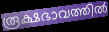
രൂക്ഷഭാവത്തിൽ